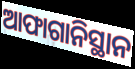
ଆଫାଗାନିସ୍ଥାନ